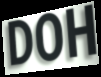
DOH